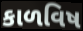
કાળવિષ